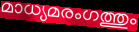
മാധ്യമരംഗത്തും